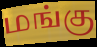
மங்கு